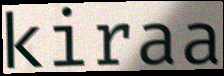
kiraa